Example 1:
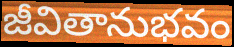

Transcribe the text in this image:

జీవితానుభవం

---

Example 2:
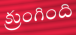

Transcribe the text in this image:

క్రుంగింది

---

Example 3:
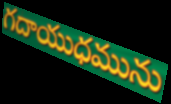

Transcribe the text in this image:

గదాయుధమును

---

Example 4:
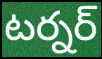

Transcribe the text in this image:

టర్నర్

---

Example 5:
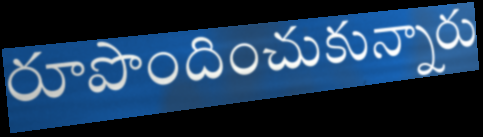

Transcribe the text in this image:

రూపొందించుకున్నారు